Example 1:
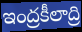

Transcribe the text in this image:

ఇంద్రకీలాద్రి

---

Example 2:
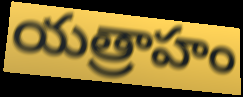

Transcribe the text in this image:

యత్రాహం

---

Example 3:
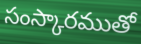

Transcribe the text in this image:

సంస్కారముతో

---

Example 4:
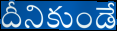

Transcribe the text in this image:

దీనికుండే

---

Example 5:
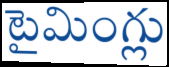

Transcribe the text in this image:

టైమింగ్లు